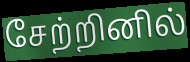
சேற்றினில்